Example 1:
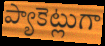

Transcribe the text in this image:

ప్యాకెట్లుగా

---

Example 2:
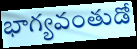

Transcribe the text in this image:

భాగ్యవంతుడో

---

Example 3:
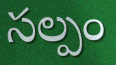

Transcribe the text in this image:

సల్పం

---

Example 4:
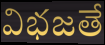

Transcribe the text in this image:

విభజతే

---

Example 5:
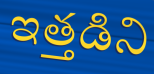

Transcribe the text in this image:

ఇత్తడిని